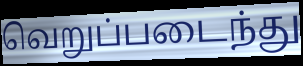
வெறுப்படைந்து